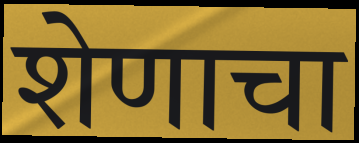
शेणाचा